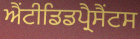
ਐਂਟੀਡਿਡਪ੍ਰੈਸੈਂਟਸ